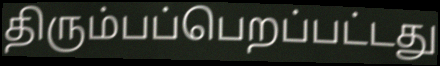
திரும்பப்பெறப்பட்டது